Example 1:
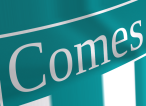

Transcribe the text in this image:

Comes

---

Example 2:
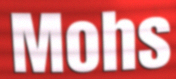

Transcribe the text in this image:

Mohs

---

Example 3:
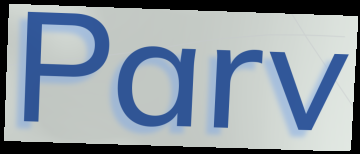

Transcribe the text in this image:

Parv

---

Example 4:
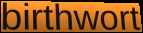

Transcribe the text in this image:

birthwort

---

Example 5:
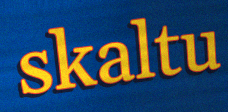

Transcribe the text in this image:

skaltu